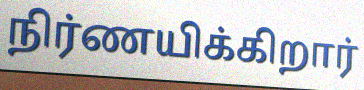
நிர்ணயிக்கிறார்